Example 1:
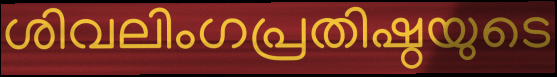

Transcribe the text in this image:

ശിവലിംഗപ്രതിഷ്ഠയുടെ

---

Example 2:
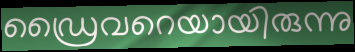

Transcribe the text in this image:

ഡ്രൈവറെയായിരുന്നു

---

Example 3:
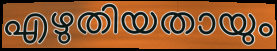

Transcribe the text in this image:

എഴുതിയതായും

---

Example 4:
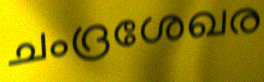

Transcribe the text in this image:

ചംദ്രശേഖര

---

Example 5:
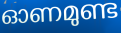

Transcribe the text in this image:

ഓണമുണ്ട